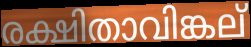
രക്ഷിതാവിങ്കല്